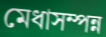
মেধাসম্পন্ন